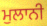
ਮੁਲਾਨੀ